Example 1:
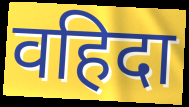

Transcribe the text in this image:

वहिदा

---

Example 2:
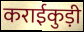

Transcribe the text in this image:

कराईकुड़ी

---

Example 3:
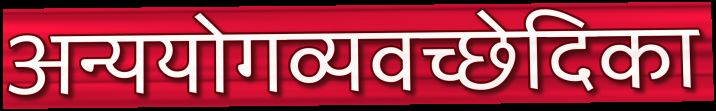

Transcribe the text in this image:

अन्ययोगव्यवच्छेदिका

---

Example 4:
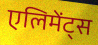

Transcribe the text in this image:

एलिमेंट्स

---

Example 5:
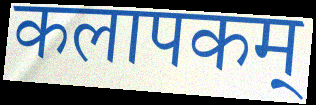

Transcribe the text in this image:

कलापकम्